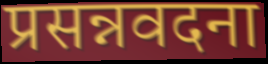
प्रसन्नवदना